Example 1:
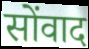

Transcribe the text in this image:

सोंवाद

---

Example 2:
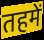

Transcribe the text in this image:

तहमें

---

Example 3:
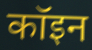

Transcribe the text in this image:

कॉइन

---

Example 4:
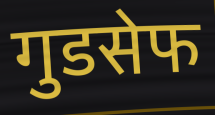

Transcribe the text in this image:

गुडसेफ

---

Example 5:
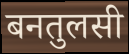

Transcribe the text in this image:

बनतुलसी